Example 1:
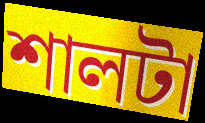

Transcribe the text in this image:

শালটা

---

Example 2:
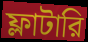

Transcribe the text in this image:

ফ্লাটারি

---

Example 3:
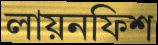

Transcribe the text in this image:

লায়নফিশ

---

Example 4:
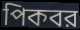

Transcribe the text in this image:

পিকবর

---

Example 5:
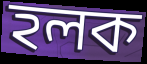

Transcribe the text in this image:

হলক